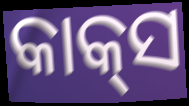
କାକ୍‌ସ